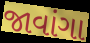
જાવાંગા